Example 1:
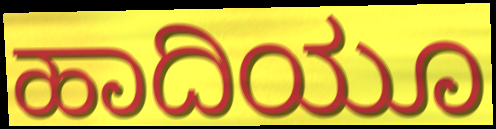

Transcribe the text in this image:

ಹಾದಿಯೂ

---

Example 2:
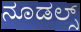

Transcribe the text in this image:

ನೂಡಲ್ಸ್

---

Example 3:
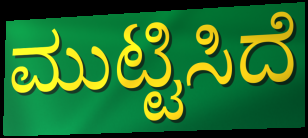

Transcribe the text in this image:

ಮುಟ್ಟಿಸಿದೆ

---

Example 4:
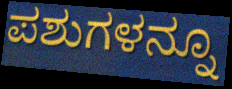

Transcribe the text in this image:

ಪಶುಗಳನ್ನೂ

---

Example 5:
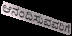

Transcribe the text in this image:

ಆನಂದಿಸುವವರಿಗೆ